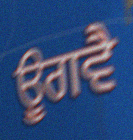
ਊਗਵੈ